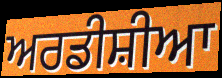
ਅਰਡੀਸ਼ੀਆ